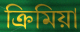
ক্রিমিয়া